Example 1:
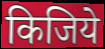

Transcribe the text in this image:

किजिये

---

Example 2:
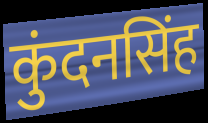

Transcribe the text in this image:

कुंदनसिंह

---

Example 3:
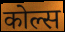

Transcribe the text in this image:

कोल्स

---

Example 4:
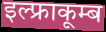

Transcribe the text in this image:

इल्फ्राकूम्ब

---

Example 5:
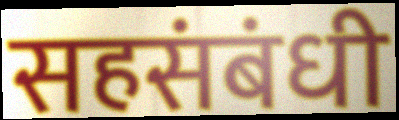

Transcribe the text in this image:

सहसंबंधी